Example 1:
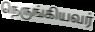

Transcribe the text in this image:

நெருங்கியவர்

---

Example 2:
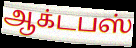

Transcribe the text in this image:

ஆக்டபஸ்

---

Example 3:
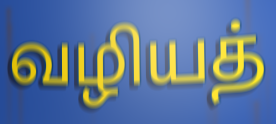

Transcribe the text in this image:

வழியத்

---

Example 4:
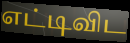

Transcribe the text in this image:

எட்டிவிட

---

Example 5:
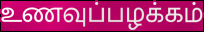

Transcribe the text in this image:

உணவுப்பழக்கம்